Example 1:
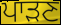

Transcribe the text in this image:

ਪਾੜਣ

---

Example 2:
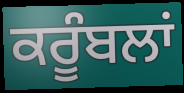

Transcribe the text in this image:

ਕਰੂੰਬਲਾਂ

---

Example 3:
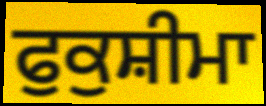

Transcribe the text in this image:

ਫੁਕੁਸ਼ੀਮਾ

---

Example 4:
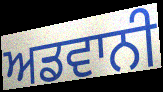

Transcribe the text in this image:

ਅਡਵਾਨੀ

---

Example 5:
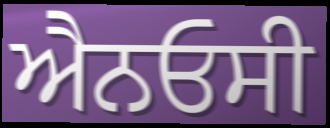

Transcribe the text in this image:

ਐਨਓਸੀ